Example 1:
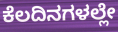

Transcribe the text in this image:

ಕೆಲದಿನಗಳಲ್ಲೇ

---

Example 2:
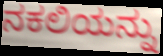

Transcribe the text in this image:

ನಕಲಿಯನ್ನು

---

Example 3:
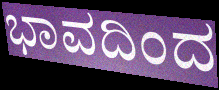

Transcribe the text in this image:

ಭಾವದಿಂದ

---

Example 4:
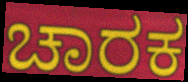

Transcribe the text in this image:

ಚಾರಕ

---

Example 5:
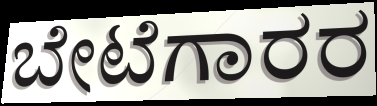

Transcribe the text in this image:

ಬೇಟೆಗಾರರ